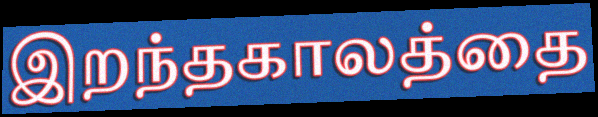
இறந்தகாலத்தை